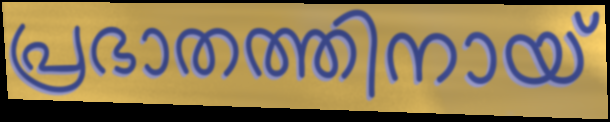
പ്രഭാതത്തിനായ്